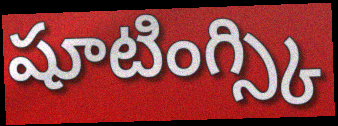
షూటింగ్స్కి